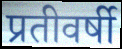
प्रतीवर्षी